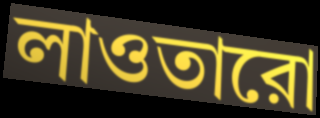
লাওতারো